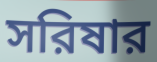
সরিষার